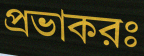
প্রভাকরঃ